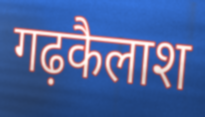
गढ़कैलाश